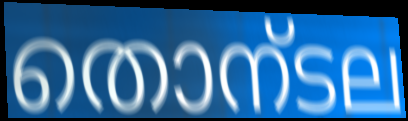
തൊന്ടല